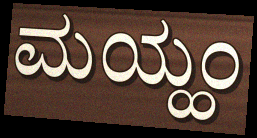
ಮಯ್ಹಂ